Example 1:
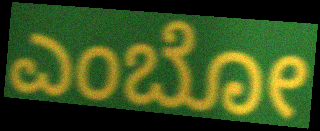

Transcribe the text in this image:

ಎಂಬೋ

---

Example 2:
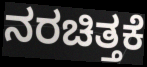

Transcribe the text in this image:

ನರಚಿತ್ತಕೆ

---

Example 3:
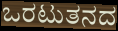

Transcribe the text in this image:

ಒರಟುತನದ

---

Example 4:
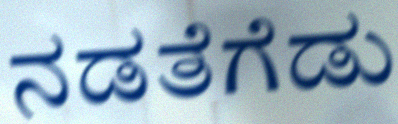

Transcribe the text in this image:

ನಡತೆಗೆಡು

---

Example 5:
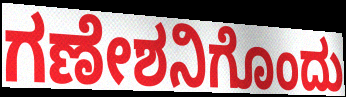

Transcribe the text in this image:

ಗಣೇಶನಿಗೊಂದು